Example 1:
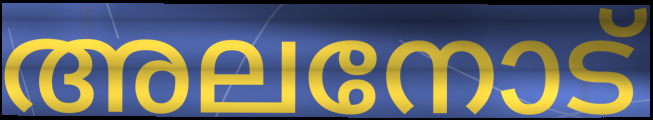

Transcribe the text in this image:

അലനോട്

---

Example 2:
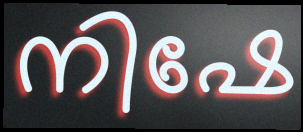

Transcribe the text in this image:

നിഷേ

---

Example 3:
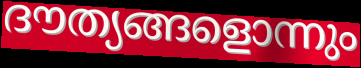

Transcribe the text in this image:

ദൗത്യങ്ങളൊന്നും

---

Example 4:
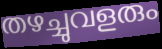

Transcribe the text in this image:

തഴച്ചുവളരും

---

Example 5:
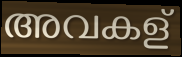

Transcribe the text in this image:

അവകള്